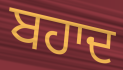
ਬਹਾਦ